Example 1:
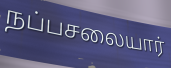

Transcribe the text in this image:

நப்பசலையார்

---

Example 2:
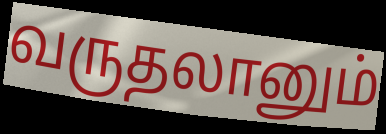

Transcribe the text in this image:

வருதலானும்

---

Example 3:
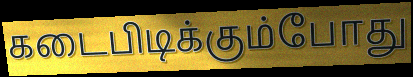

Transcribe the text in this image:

கடைபிடிக்கும்போது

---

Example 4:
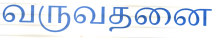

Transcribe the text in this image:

வருவதனை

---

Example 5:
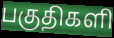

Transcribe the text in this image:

பகுதிகளி